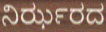
ನಿರ್ಝರದ